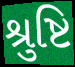
શ્રુષ્ટિ